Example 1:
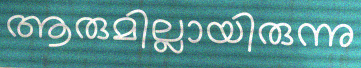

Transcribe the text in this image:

ആരുമില്ലായിരുന്നു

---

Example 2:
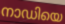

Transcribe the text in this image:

നാഡിയെ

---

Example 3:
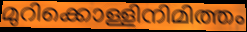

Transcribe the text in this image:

മുറിക്കൊള്ളിനിമിത്തം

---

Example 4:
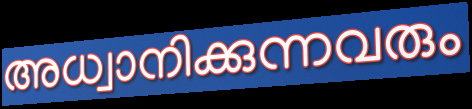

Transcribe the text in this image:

അധ്വാനിക്കുന്നവരും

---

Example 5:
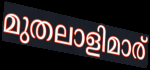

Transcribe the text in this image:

മുതലാളിമാര്